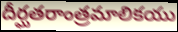
దీర్ఘతరాంత్రమాలికయు